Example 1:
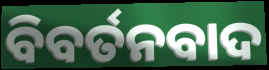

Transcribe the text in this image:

ବିବର୍ତନବାଦ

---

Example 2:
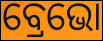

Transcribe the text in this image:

ବ୍ରେଭୋ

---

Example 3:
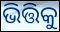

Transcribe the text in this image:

ଭିତ୍ତିକୁ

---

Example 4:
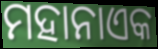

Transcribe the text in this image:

ମହାନାଏକ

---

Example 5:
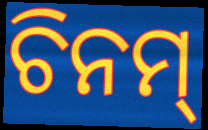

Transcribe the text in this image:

ଚିନମ୍